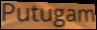
Putugam